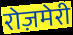
रोज़मेरी